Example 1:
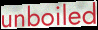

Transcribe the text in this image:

unboiled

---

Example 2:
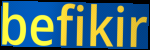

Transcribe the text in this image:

befikir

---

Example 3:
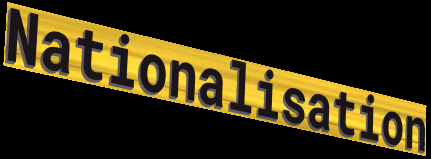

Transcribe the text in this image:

Nationalisation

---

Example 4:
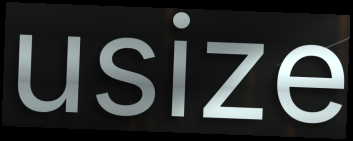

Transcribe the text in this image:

usize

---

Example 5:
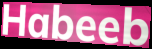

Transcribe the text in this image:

Habeeb